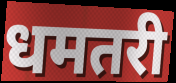
धमतरी